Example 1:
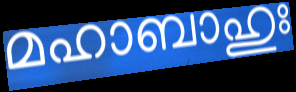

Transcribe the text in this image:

മഹാബാഹുഃ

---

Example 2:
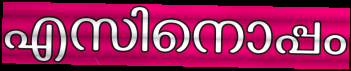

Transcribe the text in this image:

എസിനൊപ്പം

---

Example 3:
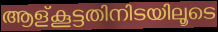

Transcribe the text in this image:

ആള്കൂട്ടതിനിടയിലൂടെ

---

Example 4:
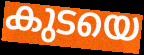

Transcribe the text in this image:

കുടയെ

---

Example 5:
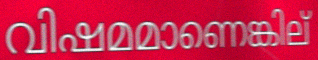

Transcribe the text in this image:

വിഷമമാണെങ്കില്